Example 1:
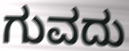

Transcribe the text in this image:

ಗುವದು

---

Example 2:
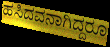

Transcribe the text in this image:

ಹಸಿದವನಾಗಿದ್ದರೂ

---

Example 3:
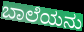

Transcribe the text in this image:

ಬಾಲೆಯನು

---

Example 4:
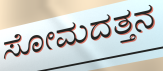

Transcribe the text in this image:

ಸೋಮದತ್ತನ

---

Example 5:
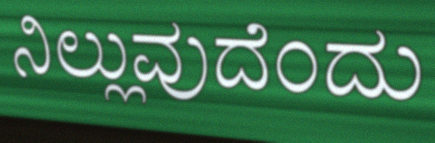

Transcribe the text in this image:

ನಿಲ್ಲುವುದೆಂದು